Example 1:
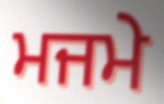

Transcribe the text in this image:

ਮਜਮੇ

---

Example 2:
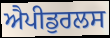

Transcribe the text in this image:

ਐਪੀਡੁਰਲਸ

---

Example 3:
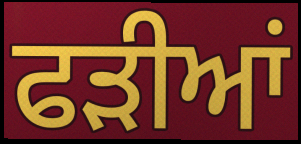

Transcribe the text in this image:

ਫੜੀਆਂ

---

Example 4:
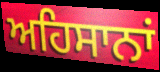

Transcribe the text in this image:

ਅਹਿਸਾਨਾਂ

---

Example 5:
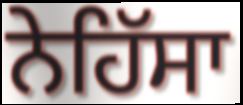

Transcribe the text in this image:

ਨੇਹਿੱਸਾ